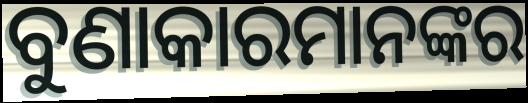
ବୁଣାକାରମାନଙ୍କର